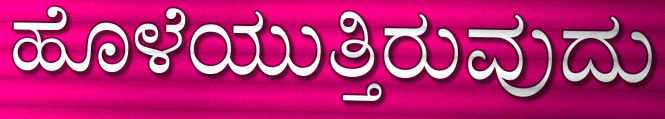
ಹೊಳೆಯುತ್ತಿರುವುದು